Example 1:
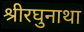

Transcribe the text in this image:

श्रीरघुनाथा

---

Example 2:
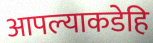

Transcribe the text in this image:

आपल्याकडेहि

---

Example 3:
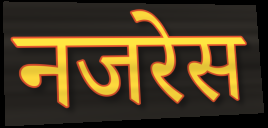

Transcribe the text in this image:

नजरेस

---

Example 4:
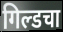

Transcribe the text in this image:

गिल्डचा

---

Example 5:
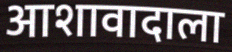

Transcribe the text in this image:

आशावादाला